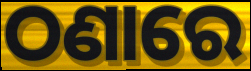
ଠଣାରେ